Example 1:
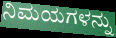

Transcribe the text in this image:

ನಿಮಯಗಳನ್ನು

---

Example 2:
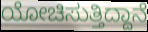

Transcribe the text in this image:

ಯೋಚಿಸುತ್ತಿದ್ದಾನೆ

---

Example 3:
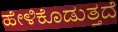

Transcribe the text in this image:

ಹೇಳಿಕೊಡುತ್ತದೆ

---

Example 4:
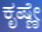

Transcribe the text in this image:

ಕೃಷ್ಣೇ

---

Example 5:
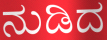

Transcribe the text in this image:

ನುಡಿದ